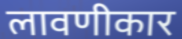
लावणीकार